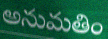
అనుమతిం